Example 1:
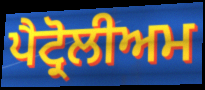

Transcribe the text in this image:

ਪੈਟ੍ਰੋਲੀਅਮ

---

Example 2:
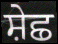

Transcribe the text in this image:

ਸ਼ੇਛ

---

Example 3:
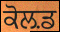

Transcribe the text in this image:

ਕੋਲ਼ਡ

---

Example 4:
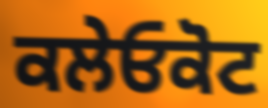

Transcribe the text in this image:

ਕਲੇਓਕੋਟ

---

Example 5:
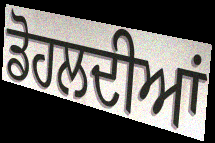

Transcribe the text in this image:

ਡੋਹਲਦੀਆਂ